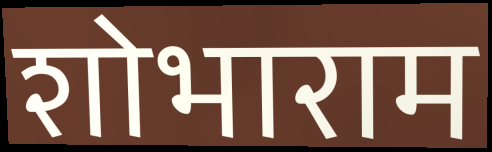
शोभाराम